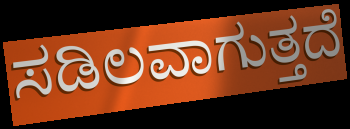
ಸಡಿಲವಾಗುತ್ತದೆ